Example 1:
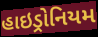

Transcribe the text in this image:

હાઇડ્રોનિયમ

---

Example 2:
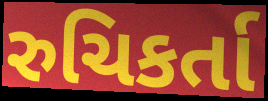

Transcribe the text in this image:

રુચિકર્તા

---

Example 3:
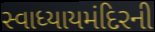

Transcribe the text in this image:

સ્વાધ્યાયમંદિરની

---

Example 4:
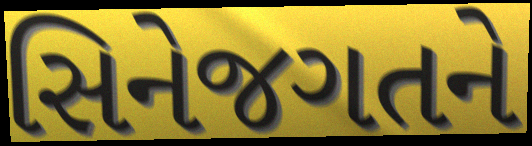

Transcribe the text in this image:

સિનેજગતને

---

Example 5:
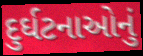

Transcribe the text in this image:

દુર્ઘટનાઓનું